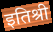
इतिश्री